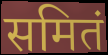
समितं